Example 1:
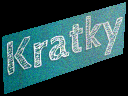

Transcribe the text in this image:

Kratky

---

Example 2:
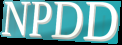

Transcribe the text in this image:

NPDD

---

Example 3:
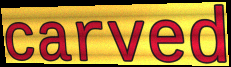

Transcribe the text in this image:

carved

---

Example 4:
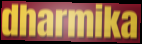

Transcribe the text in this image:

dharmika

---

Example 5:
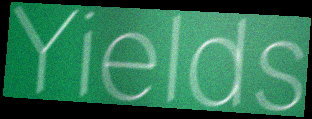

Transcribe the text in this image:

Yields